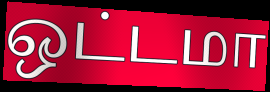
ஒட்டமா